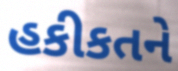
હકીકતને